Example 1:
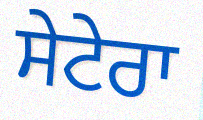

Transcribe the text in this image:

ਸੇਟੇਰਾ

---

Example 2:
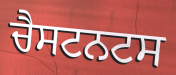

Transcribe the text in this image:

ਚੈਸਟਨਟਸ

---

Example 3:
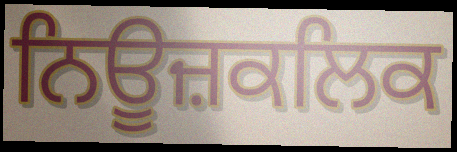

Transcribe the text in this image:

ਨਿਊਜ਼ਕਲਿਕ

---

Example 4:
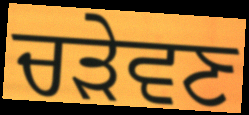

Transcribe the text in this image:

ਚੜੇਵਣ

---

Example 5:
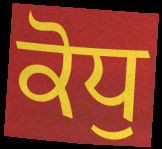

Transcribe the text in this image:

ਕੋਧੁ